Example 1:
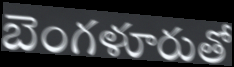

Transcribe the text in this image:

బెంగళూరుతో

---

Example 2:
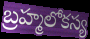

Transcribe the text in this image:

బ్రహ్మలోకస్య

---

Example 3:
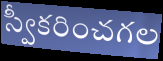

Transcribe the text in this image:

స్వీకరించగల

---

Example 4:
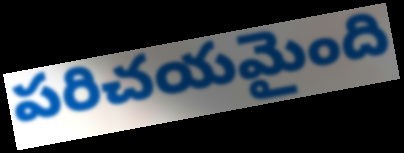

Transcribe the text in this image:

పరిచయమైంది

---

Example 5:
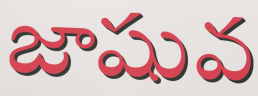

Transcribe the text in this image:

జాషువ